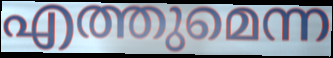
എത്തുമെന്ന